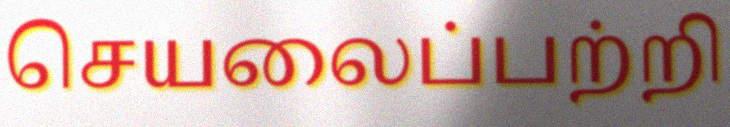
செயலைப்பற்றி